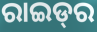
ରାଇଡ୍‌ର